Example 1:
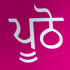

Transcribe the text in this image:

ਪੂਠੋ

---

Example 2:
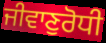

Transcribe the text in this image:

ਜੀਵਾਣੁਰੋਧੀ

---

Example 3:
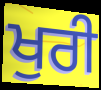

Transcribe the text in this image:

ਖੁਰੀ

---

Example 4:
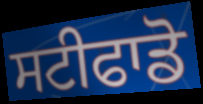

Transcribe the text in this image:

ਸਟੀਫਾਡੋ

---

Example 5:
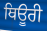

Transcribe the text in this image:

ਥਿਊਰੀ